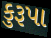
કુરૂપા